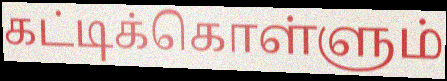
கட்டிக்கொள்ளும்